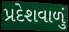
પ્રદેશવાળું